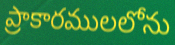
ప్రాకారములలోను